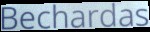
Bechardas